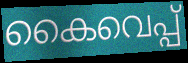
കൈവെപ്പ്